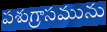
పశుగ్రాసమును